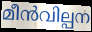
മീൻവില്പന